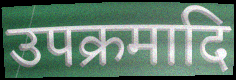
उपक्रमादि